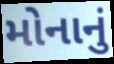
મોનાનું